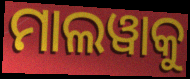
ମାଲୱାକୁ